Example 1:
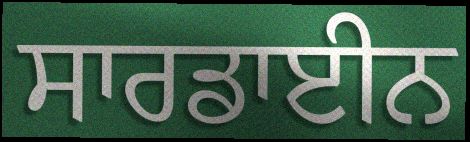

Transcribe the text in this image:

ਸਾਰਡਾਈਨ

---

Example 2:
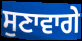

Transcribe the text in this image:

ਸੁਣਾਵਾਗੇ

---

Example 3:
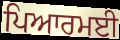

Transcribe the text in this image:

ਪਿਆਰਮਈ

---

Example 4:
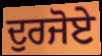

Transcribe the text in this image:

ਦੁਰਜੋਏ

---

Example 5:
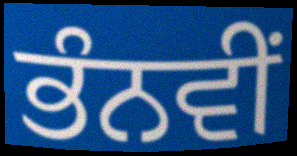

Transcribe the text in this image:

ਭੰਨਵੀਂ